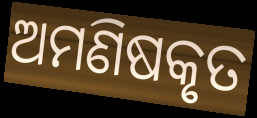
ଅମଣିଷକୃତ